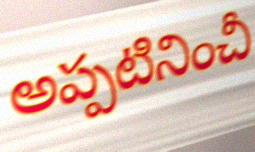
అప్పటినించీ